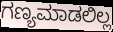
ಗಣ್ಯಮಾಡಲಿಲ್ಲ